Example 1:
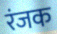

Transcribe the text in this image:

रंजक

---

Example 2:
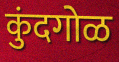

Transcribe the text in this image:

कुंदगोळ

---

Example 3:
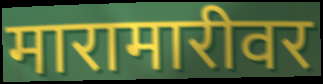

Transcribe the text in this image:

मारामारीवर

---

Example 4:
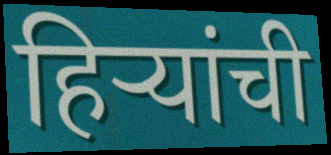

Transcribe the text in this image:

हिऱ्यांची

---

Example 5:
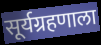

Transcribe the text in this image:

सूर्यग्रहणाला